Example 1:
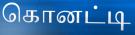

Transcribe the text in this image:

கொனட்டி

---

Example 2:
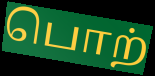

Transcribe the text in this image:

பொற்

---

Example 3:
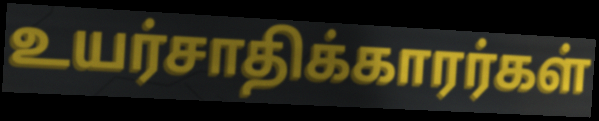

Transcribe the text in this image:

உயர்சாதிக்காரர்கள்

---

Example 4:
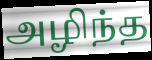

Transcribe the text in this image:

அழிந்த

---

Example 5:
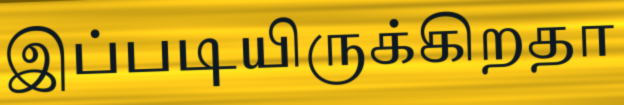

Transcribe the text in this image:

இப்படியிருக்கிறதா